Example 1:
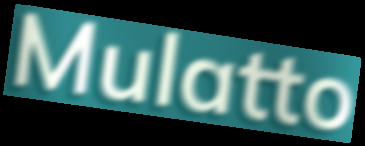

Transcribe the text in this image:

Mulatto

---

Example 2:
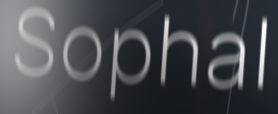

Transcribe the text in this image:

Sophal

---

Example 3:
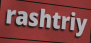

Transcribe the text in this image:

rashtriy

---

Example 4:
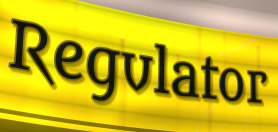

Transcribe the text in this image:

Regulator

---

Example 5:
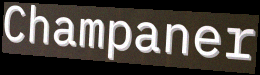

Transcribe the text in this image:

Champaner